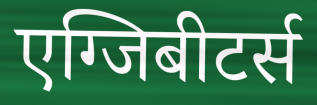
एग्जिबीटर्स